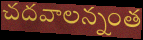
చదవాలన్నంత